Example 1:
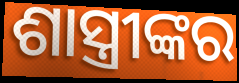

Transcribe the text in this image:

ଶାସ୍ତ୍ରୀଙ୍କର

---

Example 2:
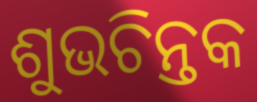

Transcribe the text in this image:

ଶୁଭଚିନ୍ତକ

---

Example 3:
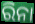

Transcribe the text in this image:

ରିନା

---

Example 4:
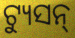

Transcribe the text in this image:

ଟ୍ୟୁସନ୍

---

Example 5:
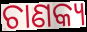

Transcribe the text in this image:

ଚାଣକ୍ଯ